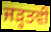
ਜੜ੍ਹਤਵੀ